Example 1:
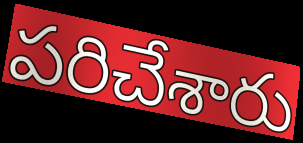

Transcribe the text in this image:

పరిచేశారు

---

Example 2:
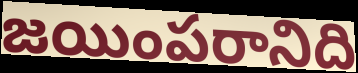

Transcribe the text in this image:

జయింపరానిది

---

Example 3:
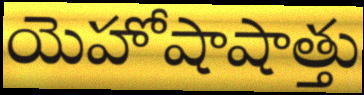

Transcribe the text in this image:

యెహోషాషాత్తు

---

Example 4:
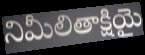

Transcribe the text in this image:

నిమీలితాక్షియై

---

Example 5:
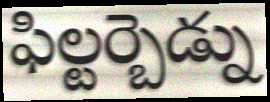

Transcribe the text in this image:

ఫిల్టర్బెడ్ను